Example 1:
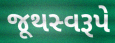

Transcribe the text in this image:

જૂથસ્વરૂપે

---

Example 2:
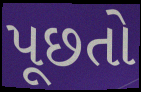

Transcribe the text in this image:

પૂછતો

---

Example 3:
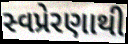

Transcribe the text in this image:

સ્વપ્રેરણાથી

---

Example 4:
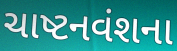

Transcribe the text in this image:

ચાષ્ટનવંશના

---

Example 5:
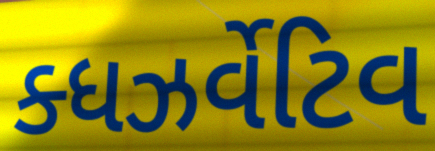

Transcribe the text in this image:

ક્ધઝર્વેટિવ